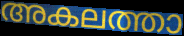
അകലത്താ